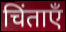
चिंताएँ